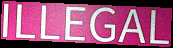
ILLEGAL